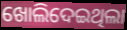
ଖୋଲିଦେଇଥିଲା